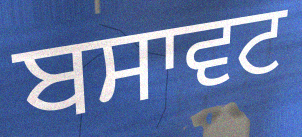
ਬਸਾਵਟ